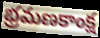
భ్రమణకాంక్ష